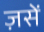
ज़सें